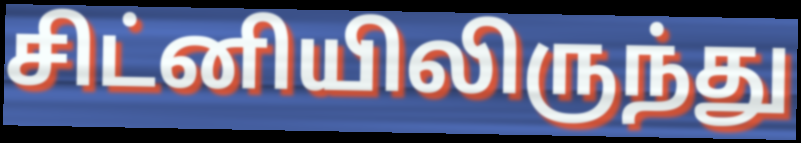
சிட்னியிலிருந்து